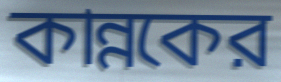
কান্নকের